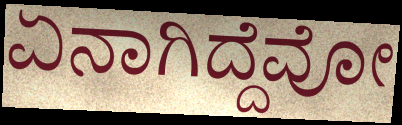
ಏನಾಗಿದ್ದೆವೋ